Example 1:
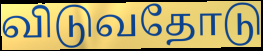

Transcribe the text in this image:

விடுவதோடு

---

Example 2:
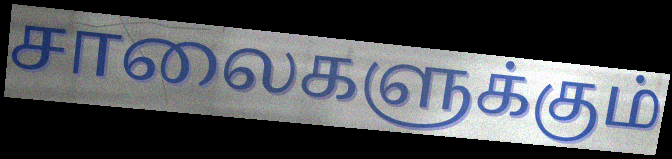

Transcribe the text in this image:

சாலைகளுக்கும்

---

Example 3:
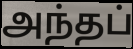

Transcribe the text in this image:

அந்தப்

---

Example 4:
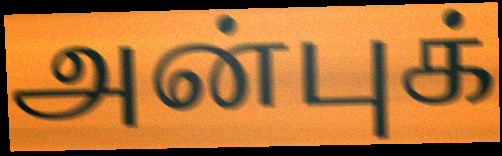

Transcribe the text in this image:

அன்புக்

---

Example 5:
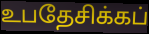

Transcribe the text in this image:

உபதேசிக்கப்